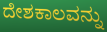
ದೇಶಕಾಲವನ್ನು